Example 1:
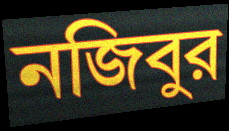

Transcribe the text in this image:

নজিবুর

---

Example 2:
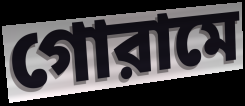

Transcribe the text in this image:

গোরামে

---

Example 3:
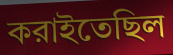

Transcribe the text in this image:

করাইতেছিল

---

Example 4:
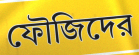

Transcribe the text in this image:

ফৌজিদের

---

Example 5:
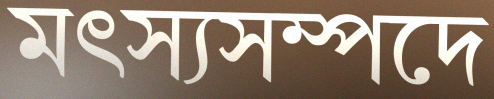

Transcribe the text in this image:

মৎস্যসম্পদে